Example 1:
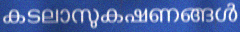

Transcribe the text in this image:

കടലാസുകഷണങ്ങൾ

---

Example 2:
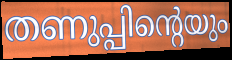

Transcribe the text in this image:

തണുപ്പിന്റെയും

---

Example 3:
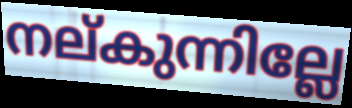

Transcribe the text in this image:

നല്കുന്നില്ലേ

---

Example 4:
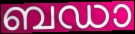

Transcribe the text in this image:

ബഡാ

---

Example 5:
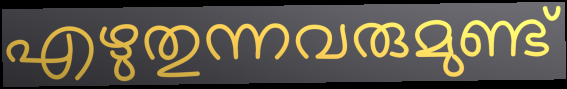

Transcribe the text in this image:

എഴുതുന്നവരുമുണ്ട്